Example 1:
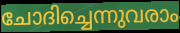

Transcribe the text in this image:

ചോദിച്ചെന്നുവരാം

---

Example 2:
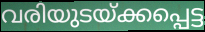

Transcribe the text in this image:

വരിയുടയ്ക്കപ്പെട്ട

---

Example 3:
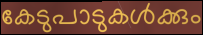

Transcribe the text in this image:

കേടുപാടുകൾക്കും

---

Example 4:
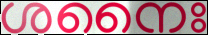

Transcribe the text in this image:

ശനൈഃ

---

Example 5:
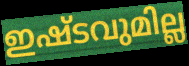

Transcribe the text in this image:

ഇഷ്ടവുമില്ല